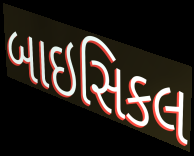
બાઇસિકલ